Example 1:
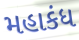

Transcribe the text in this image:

મહાકંધ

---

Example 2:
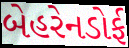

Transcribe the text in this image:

બેહરેનડોર્ફ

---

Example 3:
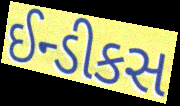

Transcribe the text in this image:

ઈન્ડીકસ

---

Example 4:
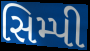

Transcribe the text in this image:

સિમ્પી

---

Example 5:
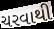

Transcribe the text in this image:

ચરવાથી